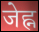
जेह्न